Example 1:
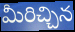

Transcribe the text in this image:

మీరిచ్చిన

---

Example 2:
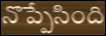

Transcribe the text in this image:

నొప్పేసింది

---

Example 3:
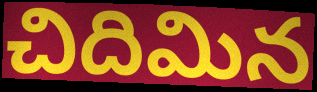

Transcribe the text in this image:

చిదిమిన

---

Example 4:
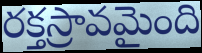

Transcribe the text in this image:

రక్తస్రావమైంది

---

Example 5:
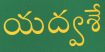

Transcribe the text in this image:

యద్వశే